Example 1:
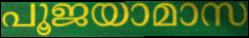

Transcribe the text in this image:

പൂജയാമാസ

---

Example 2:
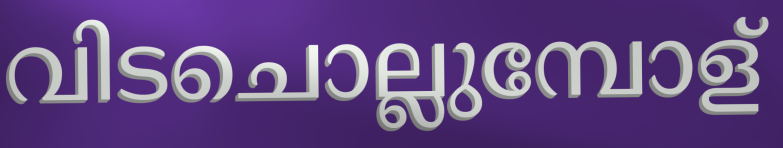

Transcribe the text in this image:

വിടചൊല്ലുമ്പോള്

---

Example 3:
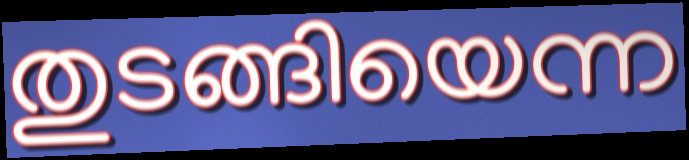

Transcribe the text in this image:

തുടങ്ങിയെന്ന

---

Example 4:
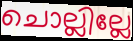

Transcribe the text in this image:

ചൊല്ലില്ലേ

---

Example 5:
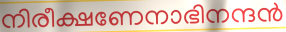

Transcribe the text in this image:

നിരീക്ഷണേനാഭിനന്ദൻ